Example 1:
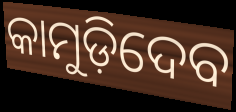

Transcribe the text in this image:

କାମୁଡ଼ିଦେବ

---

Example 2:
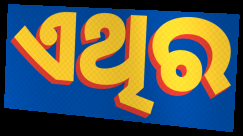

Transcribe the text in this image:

ଏଥିର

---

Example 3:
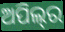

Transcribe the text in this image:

ଅପିଲ୍‌ର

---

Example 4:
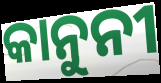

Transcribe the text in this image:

କାନୁନୀ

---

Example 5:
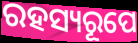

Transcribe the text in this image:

ରହସ୍ୟରୂପେ